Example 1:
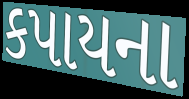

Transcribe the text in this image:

કપાયના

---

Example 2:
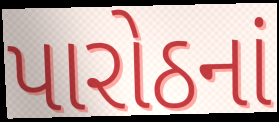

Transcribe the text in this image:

પારોઠનાં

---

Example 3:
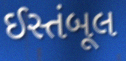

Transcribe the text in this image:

ઈસ્તંબૂલ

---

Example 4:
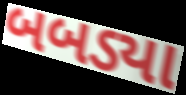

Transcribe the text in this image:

બબડ્યા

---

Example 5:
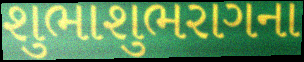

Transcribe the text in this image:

શુભાશુભરાગના